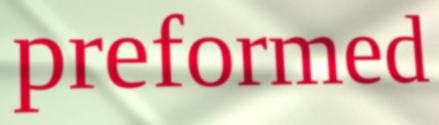
preformed